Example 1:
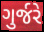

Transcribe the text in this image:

ગુર્જરે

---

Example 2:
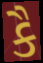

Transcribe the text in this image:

કૈ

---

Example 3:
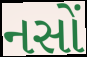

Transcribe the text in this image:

નસોં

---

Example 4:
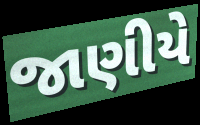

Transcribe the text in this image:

જાણીયે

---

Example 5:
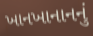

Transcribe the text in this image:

ખાનખાનાનનું